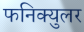
फनिक्युलर